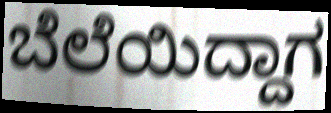
ಬೆಲೆಯಿದ್ದಾಗ